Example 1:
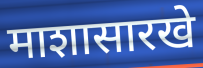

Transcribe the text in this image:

माशासारखे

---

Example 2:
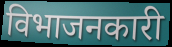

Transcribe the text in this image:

विभाजनकारी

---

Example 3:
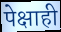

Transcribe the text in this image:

पेक्षाही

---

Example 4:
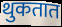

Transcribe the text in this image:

थुकतात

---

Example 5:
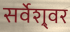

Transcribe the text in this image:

सर्वेश्र्वर